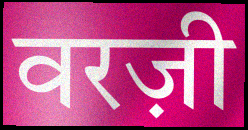
वरज़ी